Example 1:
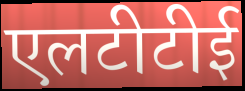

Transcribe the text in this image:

एलटीटीई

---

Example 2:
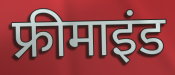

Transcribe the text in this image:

फ्रीमाइंड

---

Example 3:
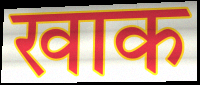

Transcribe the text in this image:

खाक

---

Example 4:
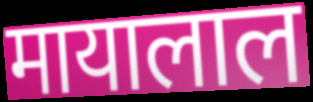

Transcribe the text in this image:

मायालाल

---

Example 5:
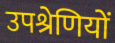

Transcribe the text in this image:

उपश्रेणियों